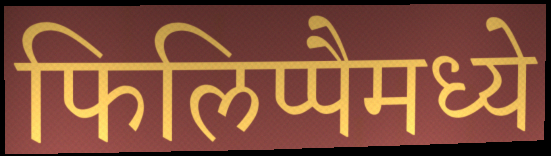
फिलिप्पैमध्ये